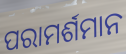
ପରାମର୍ଶମାନ